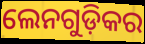
ଲେନଗୁଡ଼ିକର